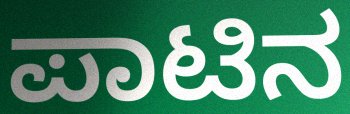
ಪಾಟಿನ